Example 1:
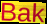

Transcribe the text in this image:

Bak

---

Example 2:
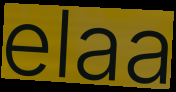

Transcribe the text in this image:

elaa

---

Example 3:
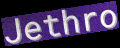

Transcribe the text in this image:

Jethro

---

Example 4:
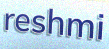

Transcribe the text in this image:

reshmi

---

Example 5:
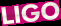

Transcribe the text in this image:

LIGO